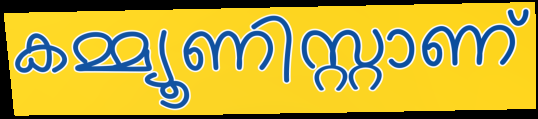
കമ്മ്യൂണിസ്റ്റാണ്